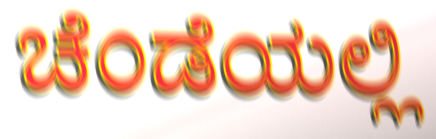
ಚೆಂಡೆಯಲ್ಲಿ